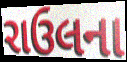
રાઉલના